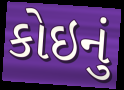
કોઇનું